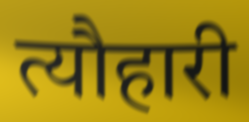
त्यौहारी